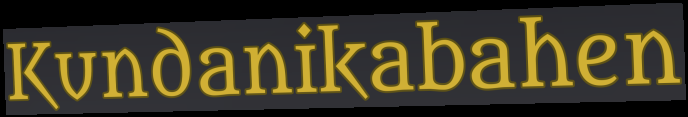
Kundanikabahen